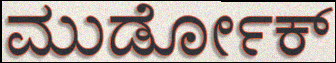
ಮುರ್ಡೋಕ್